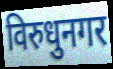
विरुधुनगर